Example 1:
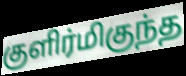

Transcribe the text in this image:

குளிர்மிகுந்த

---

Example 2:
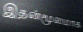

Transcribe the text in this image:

இதன்மூலமாக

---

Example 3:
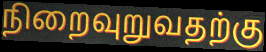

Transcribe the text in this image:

நிறைவுறுவதற்கு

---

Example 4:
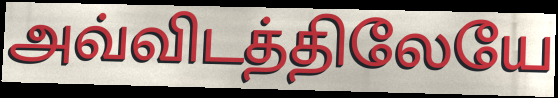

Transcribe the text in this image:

அவ்விடத்திலேயே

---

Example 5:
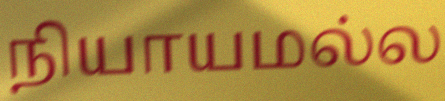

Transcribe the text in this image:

நியாயமல்ல